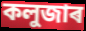
কলুজাৰ